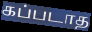
கப்படாத